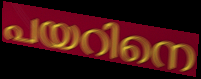
പയറിനെ